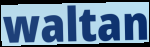
waltan